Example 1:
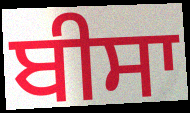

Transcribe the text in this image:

ਬੀਸਾ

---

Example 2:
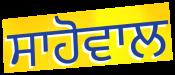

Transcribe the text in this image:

ਸਾਹੋਵਾਲ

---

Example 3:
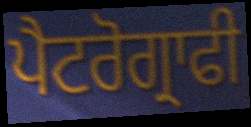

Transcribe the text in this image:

ਪੈਟਰੋਗ੍ਰਾਫੀ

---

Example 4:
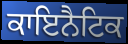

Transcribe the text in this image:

ਕਾਇਨੈਟਿਕ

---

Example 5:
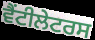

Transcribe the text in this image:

ਵੈਂਟੀਲੇਟਰਸ